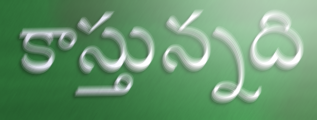
కాస్తున్నది